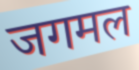
जगमल